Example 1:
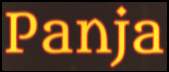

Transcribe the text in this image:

Panja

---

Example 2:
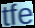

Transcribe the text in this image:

tfe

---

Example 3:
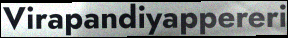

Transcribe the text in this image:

Virapandiyappereri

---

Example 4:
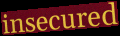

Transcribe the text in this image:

insecured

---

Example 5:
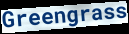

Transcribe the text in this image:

Greengrass